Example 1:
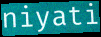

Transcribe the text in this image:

niyati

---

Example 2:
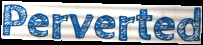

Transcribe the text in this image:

Perverted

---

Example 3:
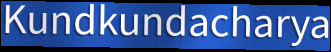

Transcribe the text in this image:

Kundkundacharya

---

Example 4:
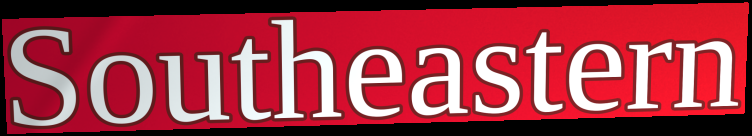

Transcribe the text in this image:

Southeastern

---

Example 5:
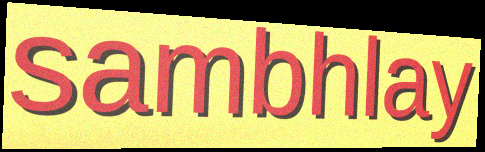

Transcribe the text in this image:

sambhlay